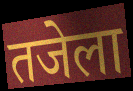
तजेला